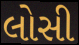
લોસી